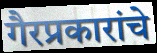
गैरप्रकारांचे